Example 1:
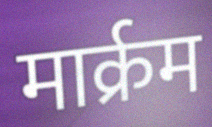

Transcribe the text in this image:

मार्क्रम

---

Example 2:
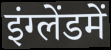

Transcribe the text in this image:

इंग्लेंडमें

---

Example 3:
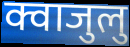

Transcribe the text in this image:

क्वाजुलु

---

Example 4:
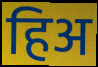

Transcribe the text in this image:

हिअ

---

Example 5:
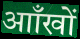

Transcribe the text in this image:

आाँखों